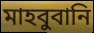
মাহবুবানি